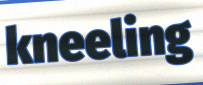
kneeling